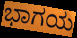
ಭಾಗಯ